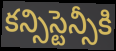
కన్సిస్టెన్సీకి